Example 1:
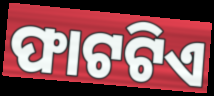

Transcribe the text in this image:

ଫାଟଟିଏ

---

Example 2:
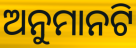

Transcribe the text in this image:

ଅନୁମାନଟି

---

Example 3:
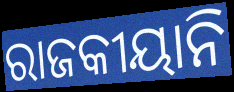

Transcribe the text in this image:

ରାଜକୀୟାନି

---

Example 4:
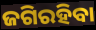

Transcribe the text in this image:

ଜଗିରହିବା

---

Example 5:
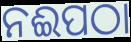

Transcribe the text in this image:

ନଈପଠା